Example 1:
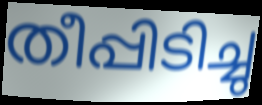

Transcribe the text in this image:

തീപ്പിടിച്ചു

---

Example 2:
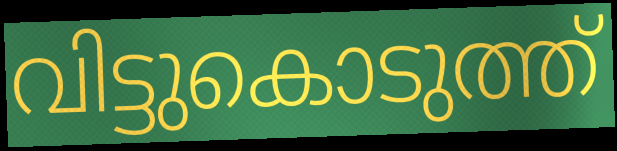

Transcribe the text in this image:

വിട്ടുകൊടുത്ത്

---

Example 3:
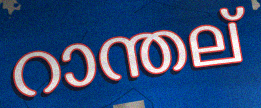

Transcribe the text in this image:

റാന്തല്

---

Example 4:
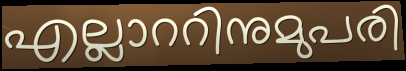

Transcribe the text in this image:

എല്ലാററിനുമുപരി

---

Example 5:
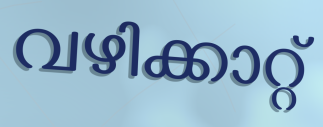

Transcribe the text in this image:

വഴിക്കാറ്റ്